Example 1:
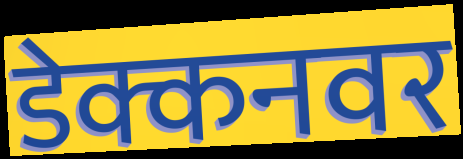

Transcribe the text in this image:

डेक्कनवर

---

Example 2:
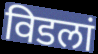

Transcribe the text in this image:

विडलां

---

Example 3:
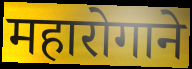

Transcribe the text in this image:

महारोगाने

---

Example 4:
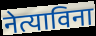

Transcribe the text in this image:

नेत्याविना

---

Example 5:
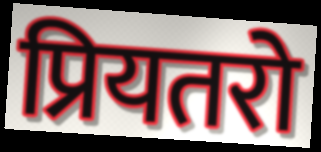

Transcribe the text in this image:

प्रियतरो